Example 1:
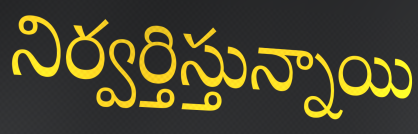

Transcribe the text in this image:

నిర్వర్తిస్తున్నాయి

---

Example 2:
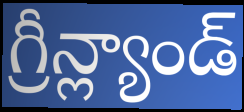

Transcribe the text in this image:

గ్రీన్ల్యాండ్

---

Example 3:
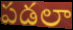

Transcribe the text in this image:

పడలా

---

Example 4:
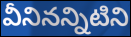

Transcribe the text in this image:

వీనినన్నిటిని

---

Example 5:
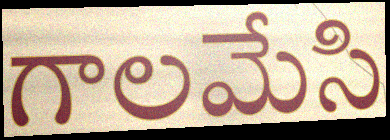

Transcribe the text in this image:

గాలమేసి